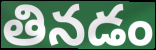
తినడం